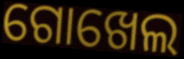
ଗୋଖେଲ